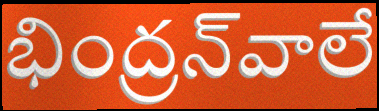
భింద్రన్‌వాలే